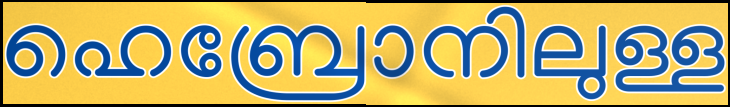
ഹെബ്രോനിലുള്ള